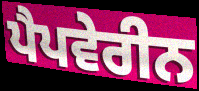
ਪੈਪਵੇਰੀਨ